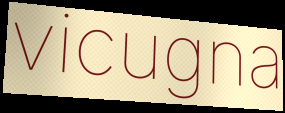
vicugna